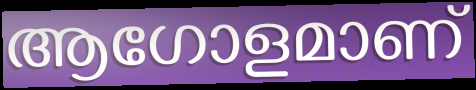
ആഗോളമാണ്